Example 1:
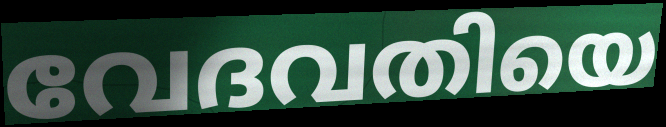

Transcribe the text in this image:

വേദവതിയെ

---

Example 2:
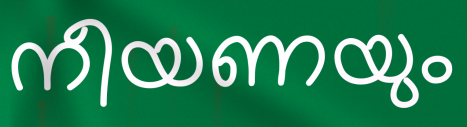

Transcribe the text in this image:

നീയണയും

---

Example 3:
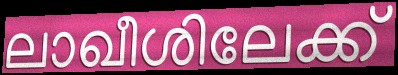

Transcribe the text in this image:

ലാഖീശിലേക്ക്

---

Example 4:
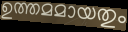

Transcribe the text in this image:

ഉത്തമമായതും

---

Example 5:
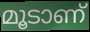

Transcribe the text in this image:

മൂടാണ്